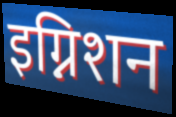
इग्निशन